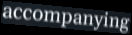
accompanying